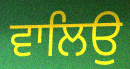
ਵਾਲਿਉ